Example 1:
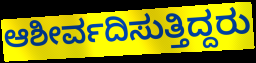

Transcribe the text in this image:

ಆಶೀರ್ವದಿಸುತ್ತಿದ್ದರು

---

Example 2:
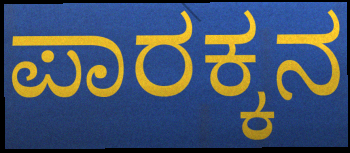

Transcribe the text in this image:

ಪಾರಕ್ಕನ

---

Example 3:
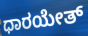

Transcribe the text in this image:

ಧಾರಯೇತ್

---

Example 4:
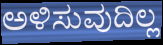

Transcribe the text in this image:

ಅಳಿಸುವುದಿಲ್ಲ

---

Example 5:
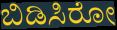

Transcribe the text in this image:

ಬಿಡಿಸಿರೋ